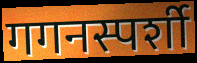
गगनस्पर्शी